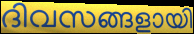
ദിവസങ്ങളായി